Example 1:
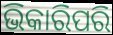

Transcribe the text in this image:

ଭିକାରିପରି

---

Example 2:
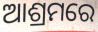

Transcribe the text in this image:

ଆଶ୍ରମରେ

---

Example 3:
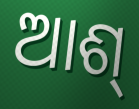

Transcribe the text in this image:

ଆଶ୍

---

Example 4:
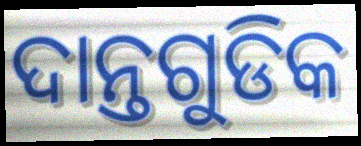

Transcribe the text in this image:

ଦାନ୍ତଗୁଡିକ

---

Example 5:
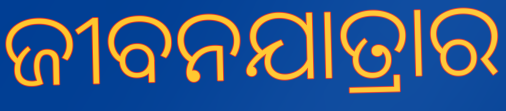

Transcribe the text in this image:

ଜୀବନଯାତ୍ରାର